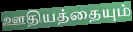
ஊதியத்தையும்